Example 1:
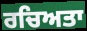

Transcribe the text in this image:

ਰਚਿਅਤਾ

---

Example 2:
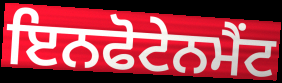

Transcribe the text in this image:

ਇਨਫੋਟੇਨਮੈਂਟ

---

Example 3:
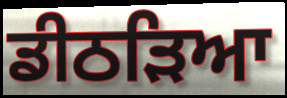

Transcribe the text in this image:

ਡੀਠੜਿਆ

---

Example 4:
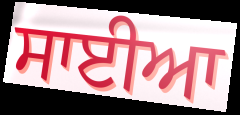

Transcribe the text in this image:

ਸਾਈਆ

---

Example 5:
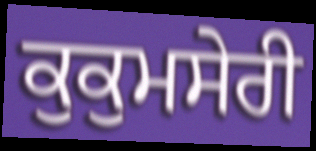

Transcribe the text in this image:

ਕੁਕੁਮਸੇਰੀ